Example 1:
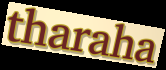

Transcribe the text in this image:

tharaha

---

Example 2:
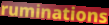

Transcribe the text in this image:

ruminations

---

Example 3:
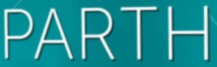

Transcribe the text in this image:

PARTH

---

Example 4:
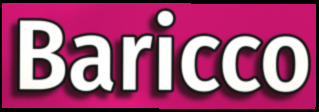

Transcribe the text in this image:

Baricco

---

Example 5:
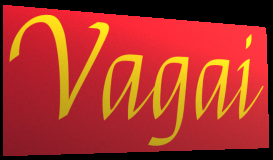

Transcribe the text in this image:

Vagai